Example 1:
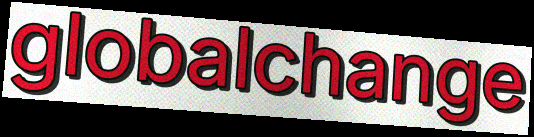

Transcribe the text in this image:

globalchange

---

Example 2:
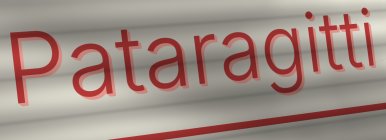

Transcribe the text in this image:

Pataragitti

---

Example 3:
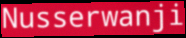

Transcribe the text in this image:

Nusserwanji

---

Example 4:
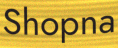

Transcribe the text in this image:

Shopna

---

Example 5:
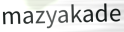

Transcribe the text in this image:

mazyakade